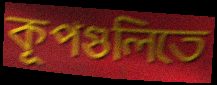
কূপগুলিতে